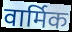
वार्मिक